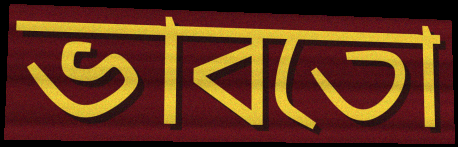
ভাবতো